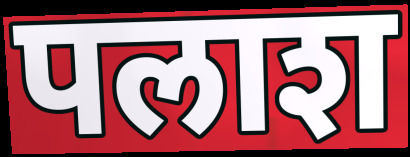
पलाश